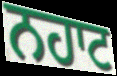
ਨਹਾਟ